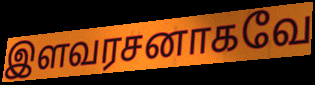
இளவரசனாகவே